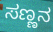
ಸಣ್ಣನ